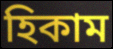
হিকাম